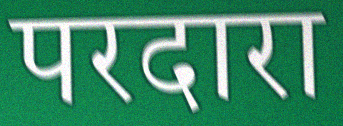
परदारा